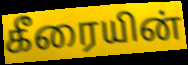
கீரையின்